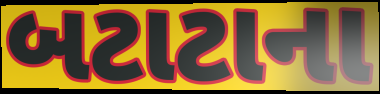
બટાટાના